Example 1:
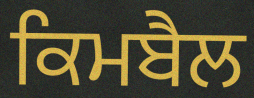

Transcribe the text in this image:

ਕਿਮਬੈਲ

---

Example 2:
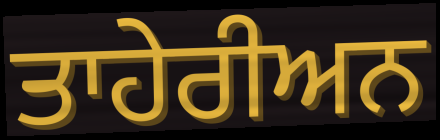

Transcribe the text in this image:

ਤਾਹੇਰੀਅਨ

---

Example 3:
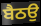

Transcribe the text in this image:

ਬੈਠਉ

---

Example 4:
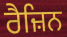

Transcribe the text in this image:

ਰੈਜ਼ਿਨ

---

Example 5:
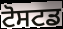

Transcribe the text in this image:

ਟੋਸਟਡ